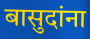
बासुदांना